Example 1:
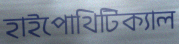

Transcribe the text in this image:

হাইপোথিটিক্যাল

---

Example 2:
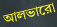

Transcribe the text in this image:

আলভারো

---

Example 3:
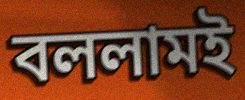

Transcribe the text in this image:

বললামই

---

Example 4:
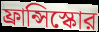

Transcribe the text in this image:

ফ্রান্সিস্কোর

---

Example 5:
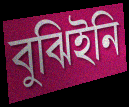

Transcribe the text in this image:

বুঝিইনি